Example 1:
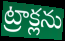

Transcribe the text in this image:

ట్రాక్లను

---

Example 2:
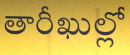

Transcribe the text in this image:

తారీఖుల్లో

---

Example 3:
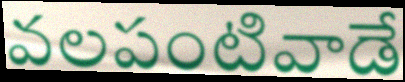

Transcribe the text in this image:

వలపంటివాడే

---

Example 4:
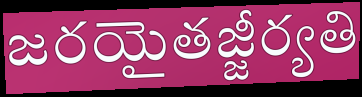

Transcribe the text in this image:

జరయైతజ్జీర్యతి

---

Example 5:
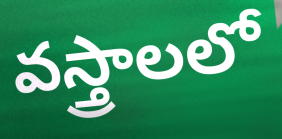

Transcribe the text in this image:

వస్త్రాలలో